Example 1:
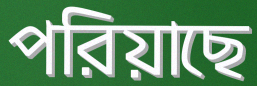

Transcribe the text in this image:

পরিয়াছে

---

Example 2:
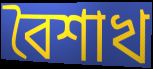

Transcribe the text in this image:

বৈশাখ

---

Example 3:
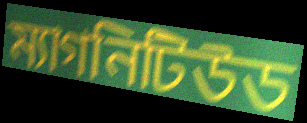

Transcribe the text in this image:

ম্যাগনিটিউড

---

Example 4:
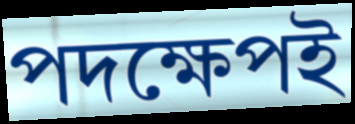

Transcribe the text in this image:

পদক্ষেপই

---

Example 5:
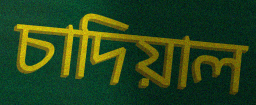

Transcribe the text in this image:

চাদিয়াল